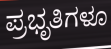
ಪ್ರಭೃತಿಗಳೂ